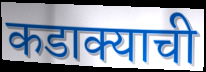
कडाक्याची